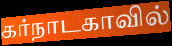
கர்நாடகாவில்